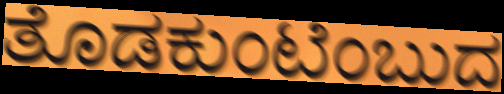
ತೊಡಕುಂಟೆಂಬುದ